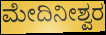
ಮೇದಿನೀಶ್ವರ